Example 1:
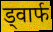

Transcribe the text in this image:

ड्वार्फ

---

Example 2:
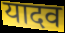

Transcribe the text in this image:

यादव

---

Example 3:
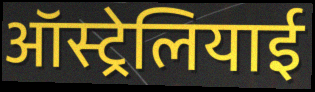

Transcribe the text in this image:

ऑस्ट्रेलियाई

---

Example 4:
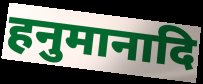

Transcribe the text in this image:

हनुमानादि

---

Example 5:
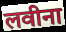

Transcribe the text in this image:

लवीना